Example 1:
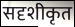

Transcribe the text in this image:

सदृशीकृत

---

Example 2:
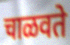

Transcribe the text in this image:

चाळवते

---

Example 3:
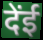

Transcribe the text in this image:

देंई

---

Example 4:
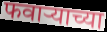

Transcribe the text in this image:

फवाऱ्याच्या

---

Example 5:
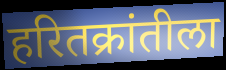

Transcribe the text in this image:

हरितक्रांतीला